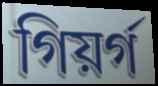
গিয়ৰ্গ